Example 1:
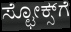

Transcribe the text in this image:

ಸ್ಟೋಕ್ಸ್‌ಗೆ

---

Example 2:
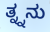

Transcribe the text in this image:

ತ್ನ್ನನು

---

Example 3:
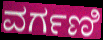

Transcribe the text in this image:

ವರ್ಗಣಿ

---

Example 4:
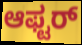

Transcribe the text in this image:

ಆಫ್ಟರ್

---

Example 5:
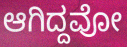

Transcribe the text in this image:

ಆಗಿದ್ದವೋ